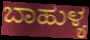
ಬಾಹುಳ್ಯ